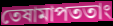
তেষামাপততাং